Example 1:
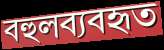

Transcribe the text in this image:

বহুলব্যবহৃত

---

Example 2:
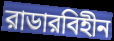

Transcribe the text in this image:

রাডারবিহীন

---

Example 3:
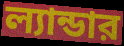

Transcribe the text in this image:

ল্যান্ডার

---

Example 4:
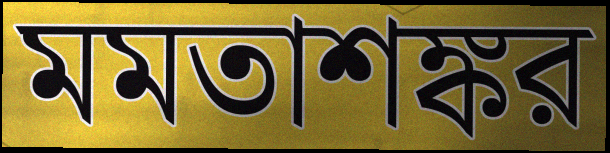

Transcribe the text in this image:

মমতাশঙ্কর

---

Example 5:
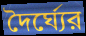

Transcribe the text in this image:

দৈর্ঘ্যের